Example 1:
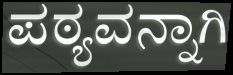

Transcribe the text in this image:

ಪಠ್ಯವನ್ನಾಗಿ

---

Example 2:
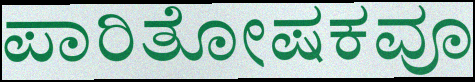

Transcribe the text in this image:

ಪಾರಿತೋಷಕವೂ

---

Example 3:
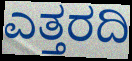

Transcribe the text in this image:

ಎತ್ತರದಿ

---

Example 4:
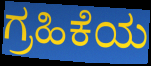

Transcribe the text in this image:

ಗ್ರಹಿಕೆಯ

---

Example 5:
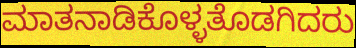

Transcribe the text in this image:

ಮಾತನಾಡಿಕೊಳ್ಳತೊಡಗಿದರು